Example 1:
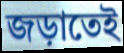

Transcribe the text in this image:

জড়াতেই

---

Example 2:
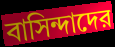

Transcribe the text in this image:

বাসিন্দাদের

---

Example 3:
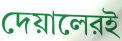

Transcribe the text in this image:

দেয়ালেরই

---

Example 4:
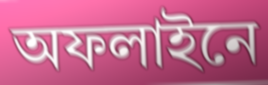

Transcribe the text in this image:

অফলাইনে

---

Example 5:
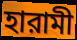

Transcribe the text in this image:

হারামী